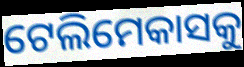
ଟେଲିମେକାସକୁ